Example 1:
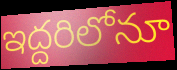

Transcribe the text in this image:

ఇద్దరిలోనూ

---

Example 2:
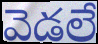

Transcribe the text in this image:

వెడలే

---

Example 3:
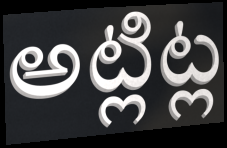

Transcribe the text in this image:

అట్లిట్ల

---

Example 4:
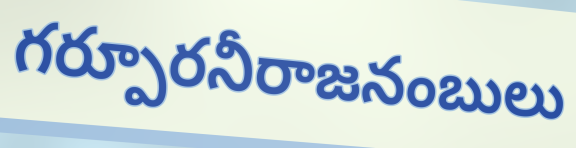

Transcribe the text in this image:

గర్పూరనీరాజనంబులు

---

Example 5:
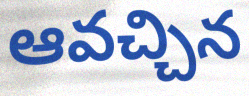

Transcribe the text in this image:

ఆవచ్చిన